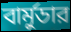
বার্মুডার